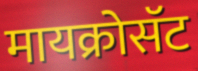
मायक्रोसॅट